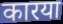
कारया